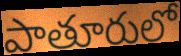
పాతూరులో